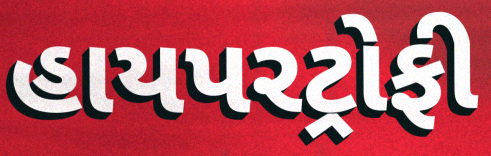
હાયપરટ્રોફી